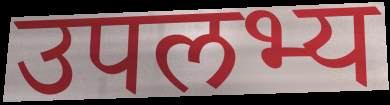
उपलभ्य